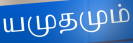
யமுதமும்